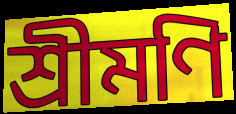
শ্রীমণি